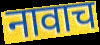
नावाच